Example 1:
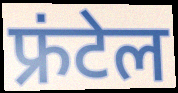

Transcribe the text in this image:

फ्रंटेल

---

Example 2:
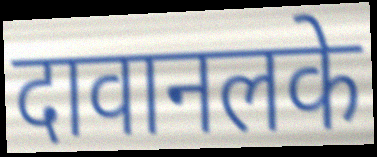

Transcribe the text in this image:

दावानलके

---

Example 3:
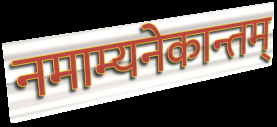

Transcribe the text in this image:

नमाम्यनेकान्तम्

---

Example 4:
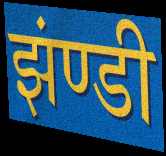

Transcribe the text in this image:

झंण्डी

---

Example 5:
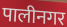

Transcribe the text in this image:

पालीनगर